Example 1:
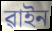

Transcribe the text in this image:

ৱাইন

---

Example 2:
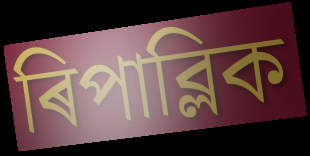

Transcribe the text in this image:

ৰিপাব্লিক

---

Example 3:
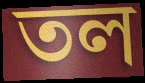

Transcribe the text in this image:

তল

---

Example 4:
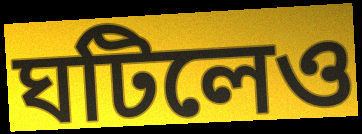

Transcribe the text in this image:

ঘটিলেও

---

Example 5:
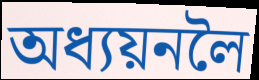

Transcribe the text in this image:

অধ্যয়নলৈ